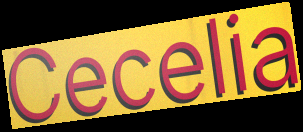
Cecelia